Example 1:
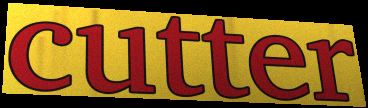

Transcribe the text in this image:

cutter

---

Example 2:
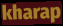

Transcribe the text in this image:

kharap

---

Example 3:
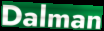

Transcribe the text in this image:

Dalman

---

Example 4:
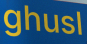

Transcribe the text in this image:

ghusl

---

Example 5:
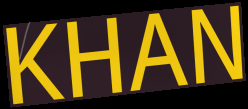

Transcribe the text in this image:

KHAN